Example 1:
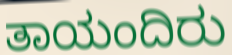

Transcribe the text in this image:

ತಾಯಂದಿರು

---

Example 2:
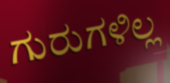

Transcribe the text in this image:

ಗುರುಗಳಿಲ್ಲ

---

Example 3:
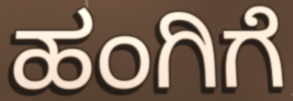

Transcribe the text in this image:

ಹಂಗಿಗೆ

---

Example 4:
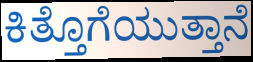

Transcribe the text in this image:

ಕಿತ್ತೊಗೆಯುತ್ತಾನೆ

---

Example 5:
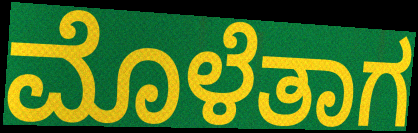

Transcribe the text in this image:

ಮೊಳೆತಾಗ